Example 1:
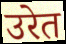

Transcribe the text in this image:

उरेत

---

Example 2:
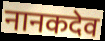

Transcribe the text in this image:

नानकदेव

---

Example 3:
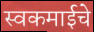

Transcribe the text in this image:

स्वकमाईचे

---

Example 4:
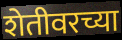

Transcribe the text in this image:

शेतीवरच्या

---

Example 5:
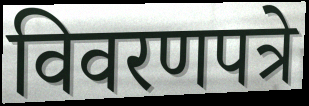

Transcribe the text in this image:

विवरणपत्रे